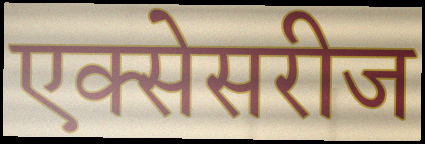
एक्सेसरीज